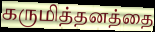
கருமித்தனத்தை